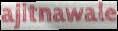
ajitnawale